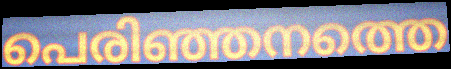
പെരിഞ്ഞനത്തെ